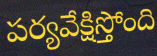
పర్యవేక్షిస్తోంది